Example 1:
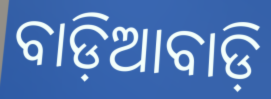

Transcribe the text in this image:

ବାଡ଼ିଆବାଡ଼ି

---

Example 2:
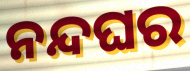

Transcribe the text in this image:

ନନ୍ଦଘର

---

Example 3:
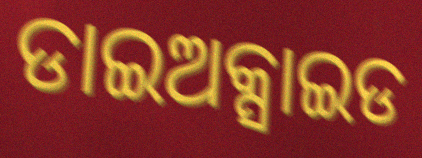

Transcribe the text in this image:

ଡାଇଅକ୍ସାଇଡ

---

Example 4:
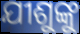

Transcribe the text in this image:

ଯୀଶୁଙ୍କୁ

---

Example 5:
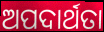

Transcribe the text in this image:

ଅପଦାର୍ଥତା